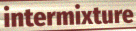
intermixture